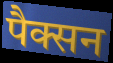
पैक्सन